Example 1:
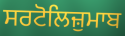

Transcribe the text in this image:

ਸਰਟੋਲਿਜ਼ੁਮਾਬ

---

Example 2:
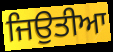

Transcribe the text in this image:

ਜਿਉਤੀਆ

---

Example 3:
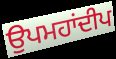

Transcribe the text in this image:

ਉਪਮਹਾਂਦੀਪ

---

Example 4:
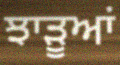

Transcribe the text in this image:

ਝਾੜੂਆਂ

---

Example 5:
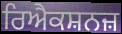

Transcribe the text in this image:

ਰਿਐਕਸ਼ਨਜ਼